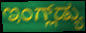
ಇಂಗ್ಲ್‌ಡ್ಯು